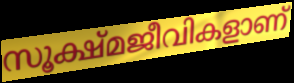
സൂക്ഷ്മജീവികളാണ്